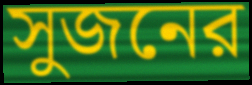
সুজনের